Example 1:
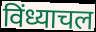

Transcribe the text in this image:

विंध्याचल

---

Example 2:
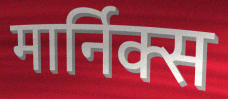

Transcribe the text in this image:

मार्निक्स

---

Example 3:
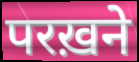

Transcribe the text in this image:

परख़ने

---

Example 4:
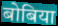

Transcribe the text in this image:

बोबिया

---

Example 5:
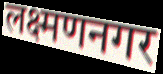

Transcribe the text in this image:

लक्ष्मणनगर